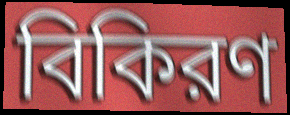
বিকিরণ